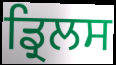
ਡ੍ਰਿਲਸ